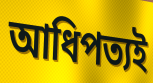
আধিপত্যই